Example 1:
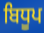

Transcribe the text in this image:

ਬਿਧੂਪ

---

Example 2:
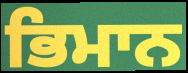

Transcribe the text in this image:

ਭਿਮਾਨ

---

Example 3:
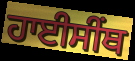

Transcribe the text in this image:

ਹਾਈਸੀੰਥ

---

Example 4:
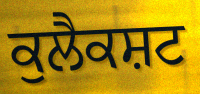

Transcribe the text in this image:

ਕੁਲੈਕਸ਼ਟ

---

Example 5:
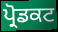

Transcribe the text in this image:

ਪ੍ਰੋਡਕਟ